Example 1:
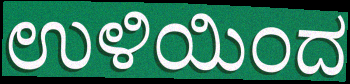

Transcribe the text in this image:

ಉಳಿಯಿಂದ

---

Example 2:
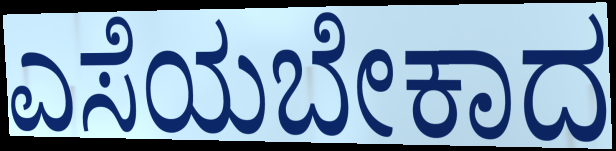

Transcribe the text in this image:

ಎಸೆಯಬೇಕಾದ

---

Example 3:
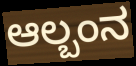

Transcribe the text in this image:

ಆಲ್ಬಂನ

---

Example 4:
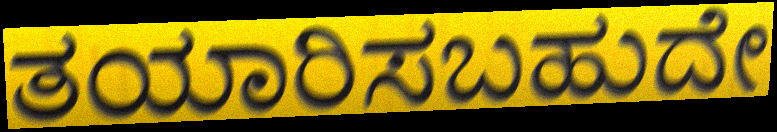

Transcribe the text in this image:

ತಯಾರಿಸಬಹುದೇ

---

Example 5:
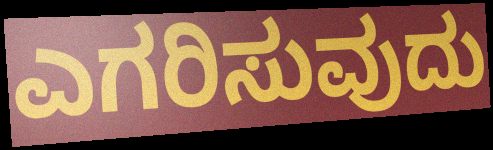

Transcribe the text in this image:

ಎಗರಿಸುವುದು